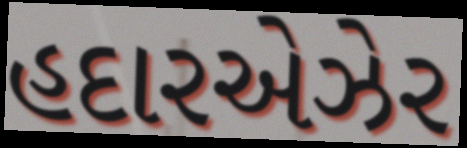
હદારએઝેર